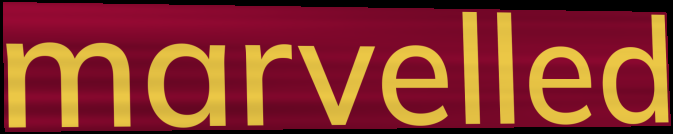
marvelled